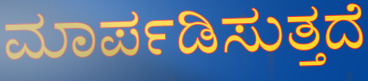
ಮಾರ್ಪಡಿಸುತ್ತದೆ